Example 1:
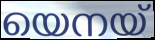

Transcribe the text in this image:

യെനയ്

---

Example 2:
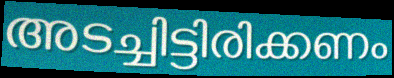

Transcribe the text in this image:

അടച്ചിട്ടിരിക്കണം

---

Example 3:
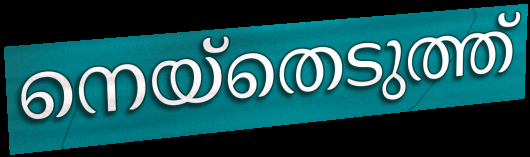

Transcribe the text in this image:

നെയ്തെടുത്ത്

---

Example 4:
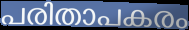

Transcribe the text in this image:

പരിതാപകരം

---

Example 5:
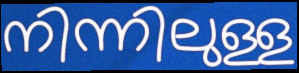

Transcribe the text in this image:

നിന്നിലുള്ള